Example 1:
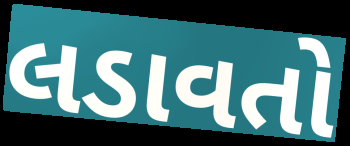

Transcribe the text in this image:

લડાવતો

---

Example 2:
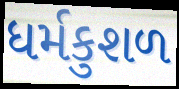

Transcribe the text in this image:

ધર્મકુશળ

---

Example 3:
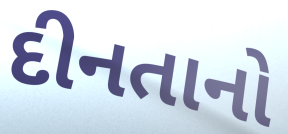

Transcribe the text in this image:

દીનતાનો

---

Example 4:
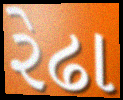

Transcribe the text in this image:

રેઢા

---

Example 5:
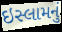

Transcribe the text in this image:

ઇસ્લામનું